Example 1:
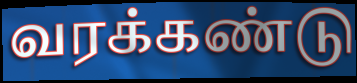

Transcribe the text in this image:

வரக்கண்டு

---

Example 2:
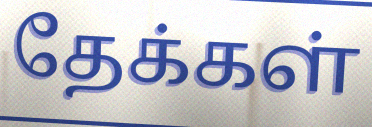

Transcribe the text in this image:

தேக்கள்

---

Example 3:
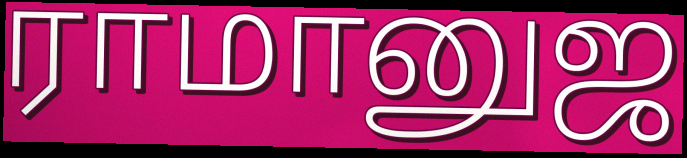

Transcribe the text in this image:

ராமானுஜ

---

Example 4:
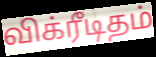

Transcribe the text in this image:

விக்ரீடிதம்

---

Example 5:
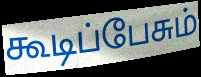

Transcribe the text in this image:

கூடிப்பேசும்